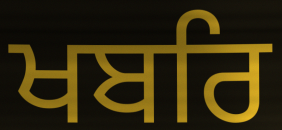
ਖਬਰਿ